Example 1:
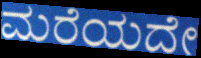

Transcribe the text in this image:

ಮರೆಯದೇ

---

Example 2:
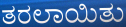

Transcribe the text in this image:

ತರಲಾಯಿತು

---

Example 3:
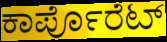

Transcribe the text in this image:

ಕಾರ್ಪೊರೆಟ್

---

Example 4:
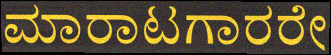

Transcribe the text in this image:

ಮಾರಾಟಗಾರರೇ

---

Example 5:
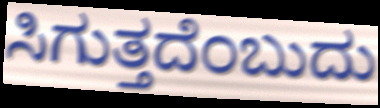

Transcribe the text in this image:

ಸಿಗುತ್ತದೆಂಬುದು